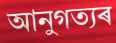
আনুগত্যৰ